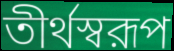
তীর্থস্বরূপ